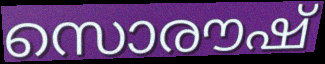
സൊരൗഷ്